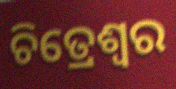
ଚିତ୍ରେଶ୍ୱର